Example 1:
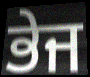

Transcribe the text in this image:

ਭੇਜ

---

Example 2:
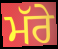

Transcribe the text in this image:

ਮੱਰੇ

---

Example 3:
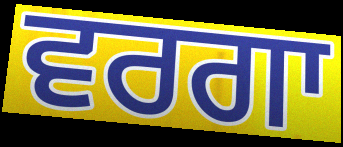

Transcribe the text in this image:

ਵਰਗਾ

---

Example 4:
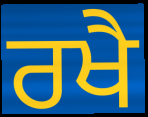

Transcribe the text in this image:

ਰਖੈ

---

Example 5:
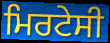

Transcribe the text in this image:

ਮਿਰਟੇਸੀ